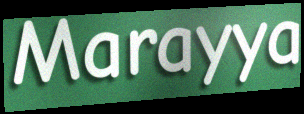
Marayya